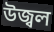
উজ্বল